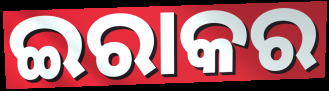
ଇରାକର